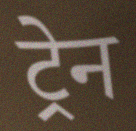
ट्रेन